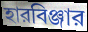
হারবিঞ্জার